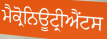
ਮੈਕ੍ਰੋਨਿਊਟ੍ਰੀਐਂਟਸ